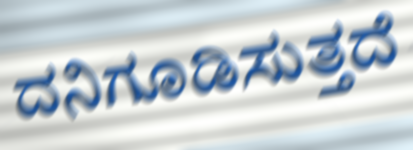
ದನಿಗೂಡಿಸುತ್ತದೆ